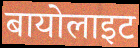
बायोलाइट